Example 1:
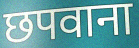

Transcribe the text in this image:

छपवाना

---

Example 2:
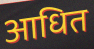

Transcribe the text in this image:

आधित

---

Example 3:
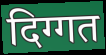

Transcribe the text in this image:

दिग्गत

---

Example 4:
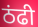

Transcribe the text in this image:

ठंढी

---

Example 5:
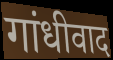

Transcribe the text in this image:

गांधीवाद